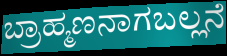
ಬ್ರಾಹ್ಮಣನಾಗಬಲ್ಲನೆ